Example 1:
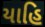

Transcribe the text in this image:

યાહિ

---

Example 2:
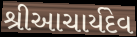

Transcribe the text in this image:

શ્રીઆચાર્યદેવ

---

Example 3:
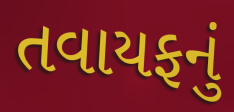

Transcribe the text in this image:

તવાયફનું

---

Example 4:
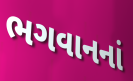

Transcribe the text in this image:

ભગવાનનાં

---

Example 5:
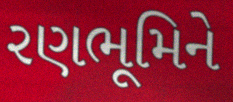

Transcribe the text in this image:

રણભૂમિને